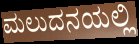
ಮಲುದನಯಲ್ಲಿ